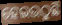
ହେଇଉଠୁଛି